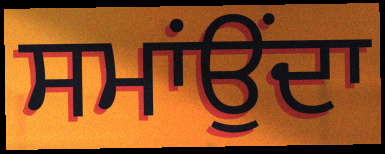
ਸਮਾਂਉਂਦਾ